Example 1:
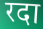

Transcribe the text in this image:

रदा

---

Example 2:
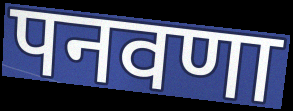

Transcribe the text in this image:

पनवणा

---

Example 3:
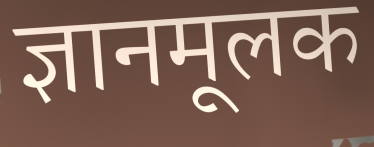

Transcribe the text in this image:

ज्ञानमूलक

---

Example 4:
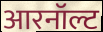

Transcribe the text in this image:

आरनॉल्ट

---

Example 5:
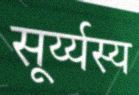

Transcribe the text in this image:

सूर्य्यस्य